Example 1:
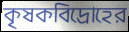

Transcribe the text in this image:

কৃষকবিদ্রোহের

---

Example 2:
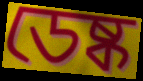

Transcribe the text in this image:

ডেষ্ক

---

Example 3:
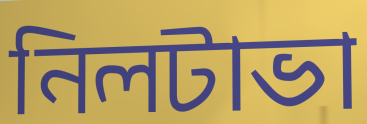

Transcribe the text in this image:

নিলটাভা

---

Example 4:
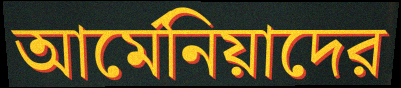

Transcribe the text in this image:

আর্মেনিয়াদের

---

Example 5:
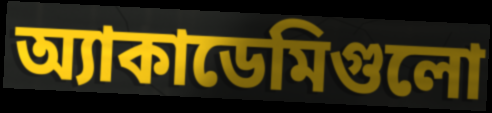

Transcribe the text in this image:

অ্যাকাডেমিগুলো